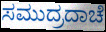
ಸಮುದ್ರದಾಚೆ